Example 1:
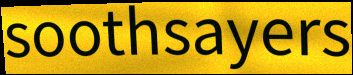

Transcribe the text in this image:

soothsayers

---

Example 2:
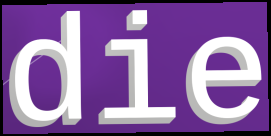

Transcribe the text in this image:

die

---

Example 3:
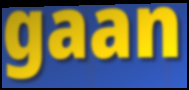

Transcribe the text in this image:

gaan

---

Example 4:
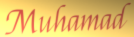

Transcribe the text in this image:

Muhamad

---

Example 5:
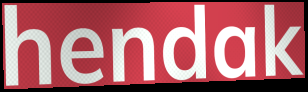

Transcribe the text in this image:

hendak